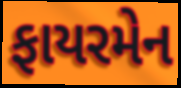
ફાયરમેન